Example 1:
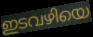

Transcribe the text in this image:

ഇടവഴിയെ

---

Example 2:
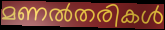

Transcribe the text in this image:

മണൽതരികൾ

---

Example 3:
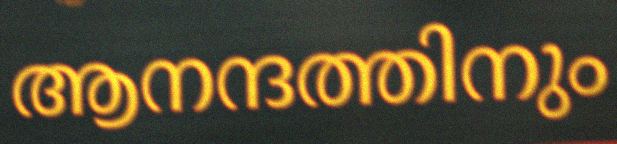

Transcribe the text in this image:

ആനന്ദത്തിനും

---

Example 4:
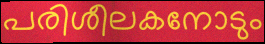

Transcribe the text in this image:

പരിശീലകനോടും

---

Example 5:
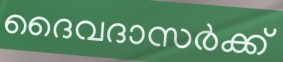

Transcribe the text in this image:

ദൈവദാസർക്ക്